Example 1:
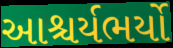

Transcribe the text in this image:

આશ્ચર્યભર્યો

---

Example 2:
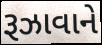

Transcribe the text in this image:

રૂઝાવાને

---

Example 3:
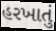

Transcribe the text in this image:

હરખાતું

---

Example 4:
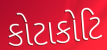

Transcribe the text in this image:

કોટાકોટિ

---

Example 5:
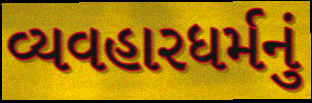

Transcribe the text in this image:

વ્યવહારધર્મનું